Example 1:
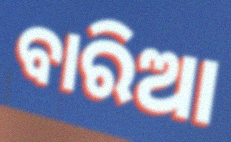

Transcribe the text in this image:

ବାରିଆ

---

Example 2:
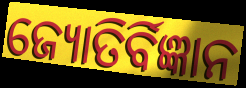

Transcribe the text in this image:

ଜ୍ୟୋତିର୍ବିଜ୍ଞାନ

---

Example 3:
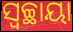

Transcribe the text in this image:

ସ୍ୱଚ୍ଛାୟା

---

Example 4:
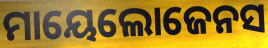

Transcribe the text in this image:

ମାୟେଲୋଜେନସ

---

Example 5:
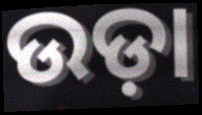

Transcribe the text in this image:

ଉଡ଼ା